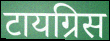
टायग्रिस